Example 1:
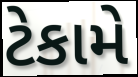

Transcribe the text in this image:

ટેકામે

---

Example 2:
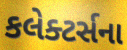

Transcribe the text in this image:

કલેક્ટર્સના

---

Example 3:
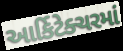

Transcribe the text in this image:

આર્કિટેક્ચરમાં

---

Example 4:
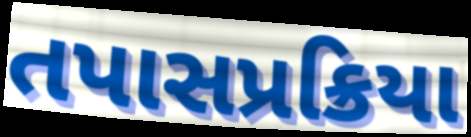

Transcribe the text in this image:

તપાસપ્રક્રિયા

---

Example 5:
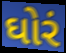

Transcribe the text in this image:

ઘોરં